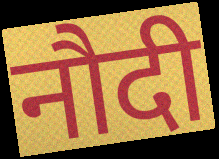
नौदी